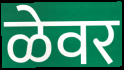
ळेवर